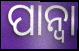
ପାନ୍ଵା